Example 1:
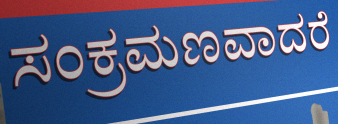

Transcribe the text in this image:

ಸಂಕ್ರಮಣವಾದರೆ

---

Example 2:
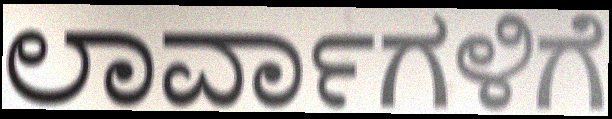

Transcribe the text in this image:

ಲಾರ್ವಾಗಳಿಗೆ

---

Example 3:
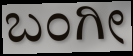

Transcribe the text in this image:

ಬಂಗೀ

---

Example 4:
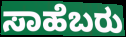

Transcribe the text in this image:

ಸಾಹೆಬರು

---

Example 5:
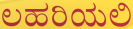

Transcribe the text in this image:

ಲಹರಿಯಲಿ